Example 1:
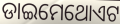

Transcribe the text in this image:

ଡାଇମେଥୋଏଟ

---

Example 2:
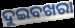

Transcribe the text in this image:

ଦୁଇବଖରା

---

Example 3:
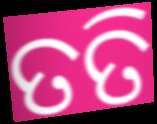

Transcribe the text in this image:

ତତି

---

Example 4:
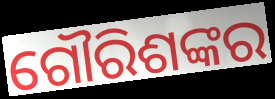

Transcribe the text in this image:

ଗୌରିଶଙ୍କର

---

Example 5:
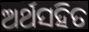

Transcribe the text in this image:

ଅର୍ଥସହିତ